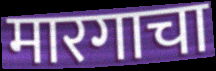
मारगाचा